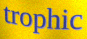
trophic